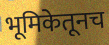
भूमिकेतूनच